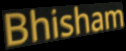
Bhisham